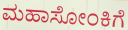
ಮಹಾಸೋಂಕಿಗೆ